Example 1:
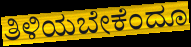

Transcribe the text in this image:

ತಿಳಿಯಬೇಕೆಂದೂ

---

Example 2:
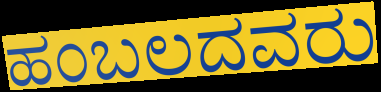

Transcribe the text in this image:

ಹಂಬಲದವರು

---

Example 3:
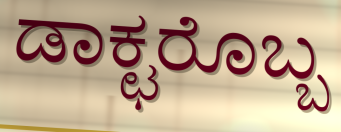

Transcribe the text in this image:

ಡಾಕ್ಟರೊಬ್ಬ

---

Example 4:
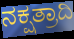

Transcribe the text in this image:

ನಕ್ಷತ್ರಾದಿ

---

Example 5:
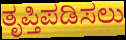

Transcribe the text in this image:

ತೃಪ್ತಿಪಡಿಸಲು